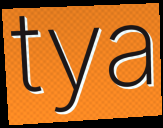
tya